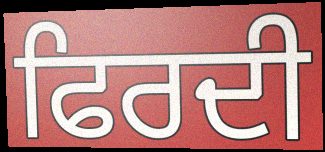
ਫਿਰਦੀ